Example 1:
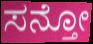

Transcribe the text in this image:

ಸನ್ತೋ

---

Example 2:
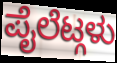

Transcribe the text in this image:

ಪೈಲೆಟ್ಗಳು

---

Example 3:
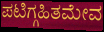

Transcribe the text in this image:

ಪಟಿಗ್ಗಹಿತಮೇವ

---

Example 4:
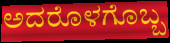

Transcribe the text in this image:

ಅದರೊಳಗೊಬ್ಬ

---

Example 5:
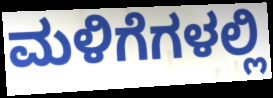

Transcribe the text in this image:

ಮಳಿಗೆಗಳಲ್ಲಿ